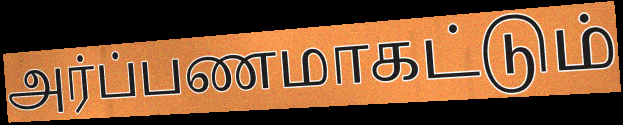
அர்ப்பணமாகட்டும்